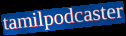
tamilpodcaster